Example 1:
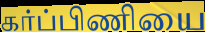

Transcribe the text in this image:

கர்ப்பிணியை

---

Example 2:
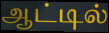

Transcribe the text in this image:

ஆட்டில்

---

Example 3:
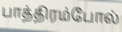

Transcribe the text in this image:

பாத்திரம்போல்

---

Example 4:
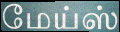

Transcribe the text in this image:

மேய்ஸ்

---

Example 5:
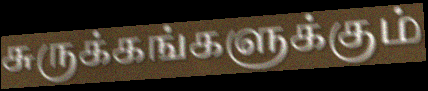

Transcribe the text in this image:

சுருக்கங்களுக்கும்